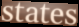
states